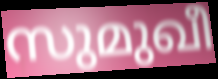
സുമുഖീ